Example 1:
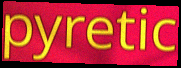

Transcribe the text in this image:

pyretic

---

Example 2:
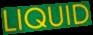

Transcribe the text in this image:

LIQUID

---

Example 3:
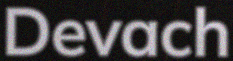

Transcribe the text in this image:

Devach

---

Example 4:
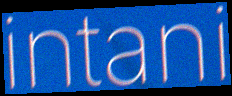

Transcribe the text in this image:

intani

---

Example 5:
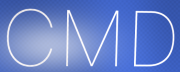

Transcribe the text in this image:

CMD